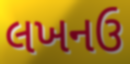
લખનઉ